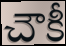
చౌకీ